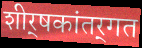
शीर्षकांतर्गत